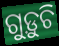
ଗୁଡ଼ୁଚି